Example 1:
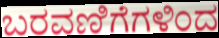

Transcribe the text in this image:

ಬರವಣಿಗೆಗಳಿಂದ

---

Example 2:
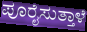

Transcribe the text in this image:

ಪೂರೈಸುತ್ತಾಳೆ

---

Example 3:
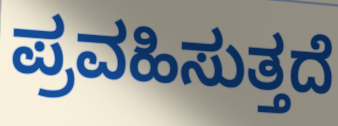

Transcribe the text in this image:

ಪ್ರವಹಿಸುತ್ತದೆ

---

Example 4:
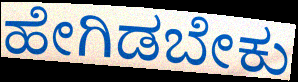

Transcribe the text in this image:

ಹೇಗಿಡಬೇಕು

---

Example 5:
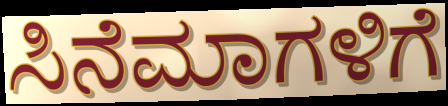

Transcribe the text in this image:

ಸಿನೆಮಾಗಳಿಗೆ